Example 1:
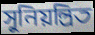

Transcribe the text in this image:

সুনিয়ন্ত্ৰিত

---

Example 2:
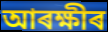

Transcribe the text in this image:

আৰক্ষীৰ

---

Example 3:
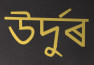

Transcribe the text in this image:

উৰ্দুৰ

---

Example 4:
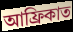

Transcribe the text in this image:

আফ্ৰিকাত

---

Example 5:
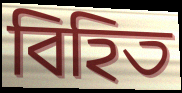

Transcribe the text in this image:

বিহিত